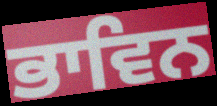
ਭਾਵਿਨ